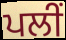
ਪਲੀਂ